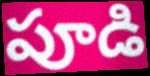
పూడి